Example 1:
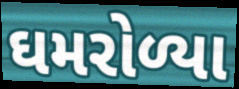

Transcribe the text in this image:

ઘમરોળ્યા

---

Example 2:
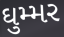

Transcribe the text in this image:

ઘુમ્મર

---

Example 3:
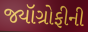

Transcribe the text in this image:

જ્યૉગ્રોફીની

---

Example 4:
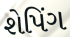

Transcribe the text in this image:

શેપિંગ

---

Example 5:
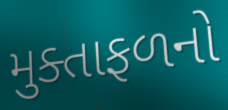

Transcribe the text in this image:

મુક્તાફળનો